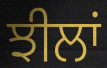
ਝੀਲਾਂ